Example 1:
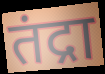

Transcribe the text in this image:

तंद्रा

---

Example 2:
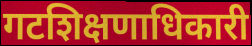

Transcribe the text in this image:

गटशिक्षणाधिकारी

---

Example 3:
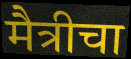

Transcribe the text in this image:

मैत्रीचा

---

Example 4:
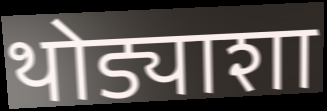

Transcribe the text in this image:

थोड्याशा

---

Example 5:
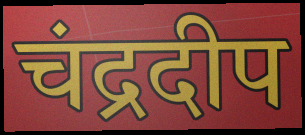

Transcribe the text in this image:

चंद्रदीप